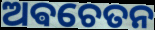
ଅଵଚେତନ